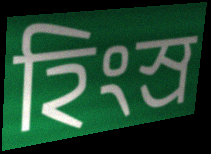
হিংস্ৰ